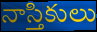
నాస్తికులు